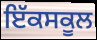
ਇੱਕਸਕੂਲ